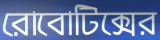
রোবোটিক্সের